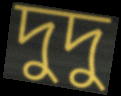
দুদু